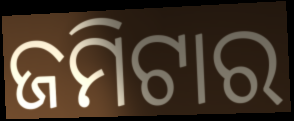
ଜମିଟାର